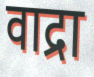
वाद्रा